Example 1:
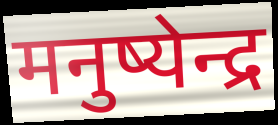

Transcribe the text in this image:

मनुष्येन्द्र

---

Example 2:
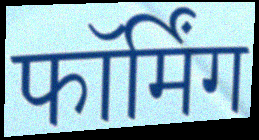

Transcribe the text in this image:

फॉर्मिंग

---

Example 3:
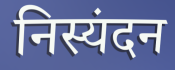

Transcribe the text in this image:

निस्यंदन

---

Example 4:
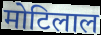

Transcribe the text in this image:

मोटिलाल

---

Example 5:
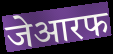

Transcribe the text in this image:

जेआरफ